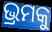
ଭ୍ରମକୁ